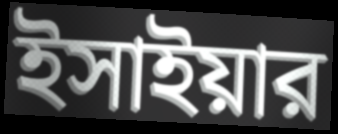
ইসাইয়ার